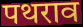
पथराव